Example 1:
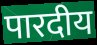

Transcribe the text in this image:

पारदीय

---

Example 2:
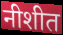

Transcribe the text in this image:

नीशीत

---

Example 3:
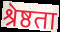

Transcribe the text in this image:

श्रेष्ठता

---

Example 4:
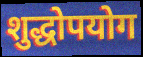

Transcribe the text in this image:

शुद्धोपयोग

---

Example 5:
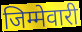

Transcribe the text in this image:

जिम्मेवारी